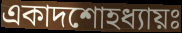
একাদশোহধ্যায়ঃ